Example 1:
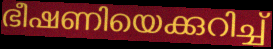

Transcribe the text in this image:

ഭീഷണിയെക്കുറിച്ച്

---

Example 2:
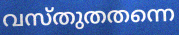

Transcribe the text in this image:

വസ്തുതതന്നെ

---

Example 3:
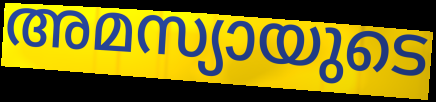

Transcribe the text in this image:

അമസ്യായുടെ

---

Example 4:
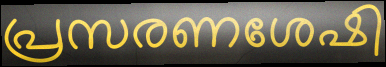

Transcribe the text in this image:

പ്രസരണശേഷി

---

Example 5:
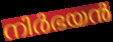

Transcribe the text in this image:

നിർഭയൻ